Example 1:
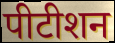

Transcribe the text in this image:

पीटीशन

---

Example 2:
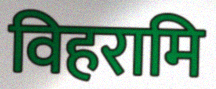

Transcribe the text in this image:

विहरामि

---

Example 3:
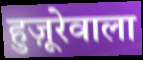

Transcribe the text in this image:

हुज़ूरेवाला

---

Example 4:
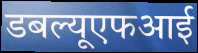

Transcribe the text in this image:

डबल्यूएफआई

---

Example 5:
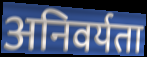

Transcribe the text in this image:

अनिवर्यता